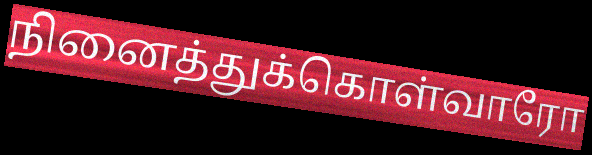
நினைத்துக்கொள்வாரோ